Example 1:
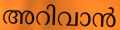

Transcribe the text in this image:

അറിവാൻ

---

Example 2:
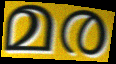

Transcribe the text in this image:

മര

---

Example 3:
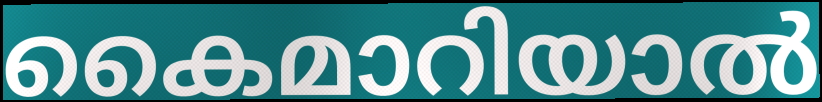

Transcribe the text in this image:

കൈമാറിയാൽ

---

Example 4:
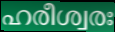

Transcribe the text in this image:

ഹരീശ്വരഃ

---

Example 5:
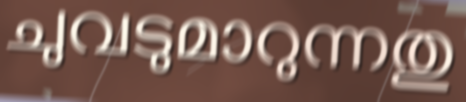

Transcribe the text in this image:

ചുവടുമാറുന്നതു